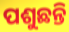
ପଶୁଛନ୍ତି